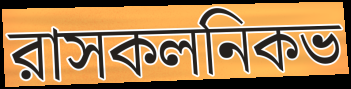
রাসকলনিকভ